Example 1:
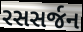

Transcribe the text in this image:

રસસર્જન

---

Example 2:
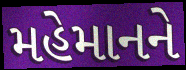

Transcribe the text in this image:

મહેમાનને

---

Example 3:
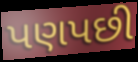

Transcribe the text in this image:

પણપછી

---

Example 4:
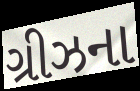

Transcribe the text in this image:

ગ્રીઝના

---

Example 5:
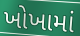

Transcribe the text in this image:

ખોખામાં